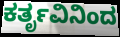
ಕರ್ತೃವಿನಿಂದ